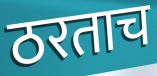
ठरताच